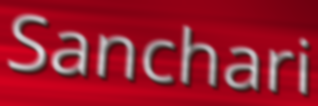
Sanchari